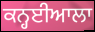
ਕਨ੍ਹਈਆਲਾ